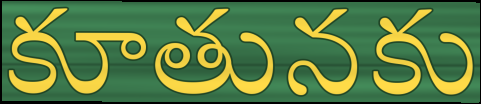
కూతునకు